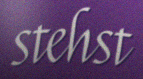
stehst